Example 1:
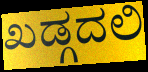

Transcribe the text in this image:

ಖಡ್ಗದಲಿ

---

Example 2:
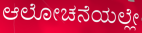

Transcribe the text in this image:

ಆಲೋಚನೆಯಲ್ಲೇ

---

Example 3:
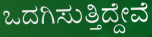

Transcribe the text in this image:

ಒದಗಿಸುತ್ತಿದ್ದೇವೆ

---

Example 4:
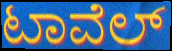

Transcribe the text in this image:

ಟಾವೆಲ್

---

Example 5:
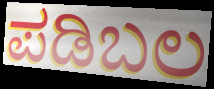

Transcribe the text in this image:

ಪಡಿಬಲ